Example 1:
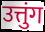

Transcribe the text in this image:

उत्तुंग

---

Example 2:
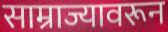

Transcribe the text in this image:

साम्राज्यावरून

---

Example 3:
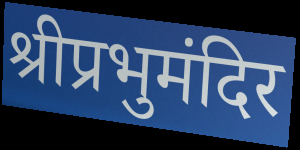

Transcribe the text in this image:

श्रीप्रभुमंदिर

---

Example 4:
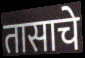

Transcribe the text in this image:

तासाचे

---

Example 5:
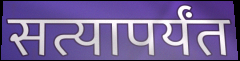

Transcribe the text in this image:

सत्यापर्यंत